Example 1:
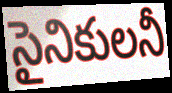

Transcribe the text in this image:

సైనికులనీ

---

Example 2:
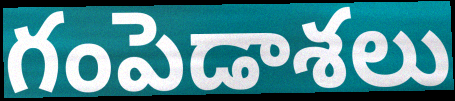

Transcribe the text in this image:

గంపెడాశలు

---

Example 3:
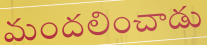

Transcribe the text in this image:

మందలించాడు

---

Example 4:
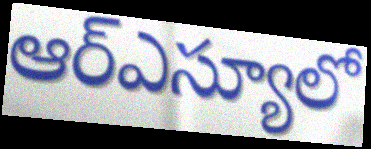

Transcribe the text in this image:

ఆర్ఎస్యూలో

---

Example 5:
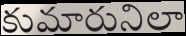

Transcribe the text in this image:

కుమారునిలా